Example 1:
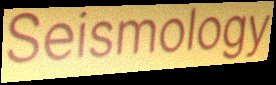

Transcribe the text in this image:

Seismology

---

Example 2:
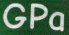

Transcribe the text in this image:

GPa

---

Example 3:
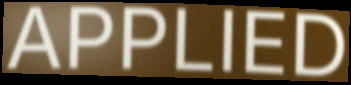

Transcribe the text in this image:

APPLIED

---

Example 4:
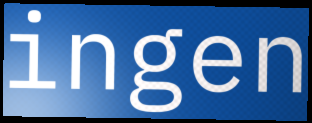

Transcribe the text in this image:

ingen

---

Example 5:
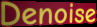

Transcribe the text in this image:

Denoise